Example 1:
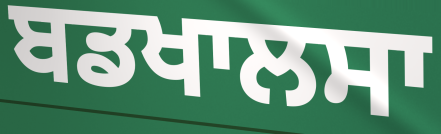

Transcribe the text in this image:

ਬਡਖਾਲਸਾ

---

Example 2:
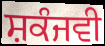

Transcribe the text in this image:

ਸ਼ਕੰਜਵੀ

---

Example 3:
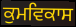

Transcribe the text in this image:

ਕੁਮਵਿਕਾਸ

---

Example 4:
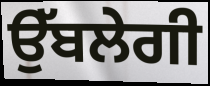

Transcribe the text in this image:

ਉੱਬਲੇਗੀ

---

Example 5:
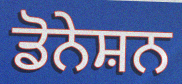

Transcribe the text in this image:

ਡੋਨੇਸ਼ਨ